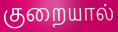
குறையால்